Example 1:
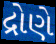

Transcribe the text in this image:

દ્રોણે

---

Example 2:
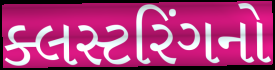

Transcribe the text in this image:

ક્લસ્ટરિંગનો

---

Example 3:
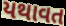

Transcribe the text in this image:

યથાવત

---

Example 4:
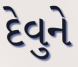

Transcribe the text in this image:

દેવુને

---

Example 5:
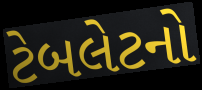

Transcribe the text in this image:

ટેબલેટનો